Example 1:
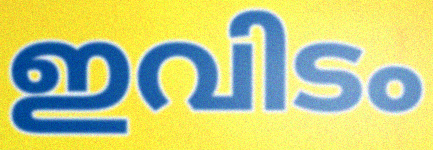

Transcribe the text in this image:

ഇവിടം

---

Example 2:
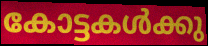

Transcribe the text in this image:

കോട്ടകൾക്കു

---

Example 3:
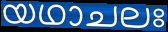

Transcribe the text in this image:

യഥാചലഃ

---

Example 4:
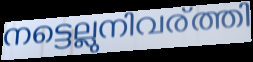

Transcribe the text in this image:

നട്ടെല്ലുനിവര്ത്തി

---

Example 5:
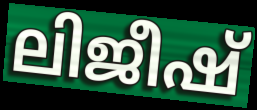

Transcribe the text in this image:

ലിജീഷ്